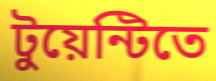
টুয়েন্টিতে